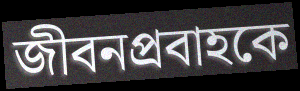
জীবনপ্রবাহকে